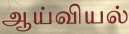
ஆய்வியல்